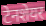
टेनशेयर